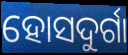
ହୋସଦୁର୍ଗା